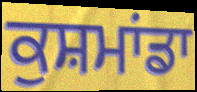
ਕੁਸ਼ਮਾਂਡਾ